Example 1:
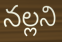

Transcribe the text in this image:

నల్లని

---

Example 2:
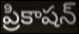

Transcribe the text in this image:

ప్రికాషన్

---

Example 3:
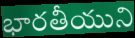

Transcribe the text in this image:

భారతీయుని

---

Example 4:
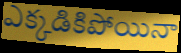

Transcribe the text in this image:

ఎక్కడికిపోయినా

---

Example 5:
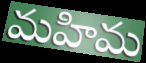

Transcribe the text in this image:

మహిమ